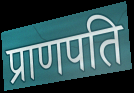
प्राणपति